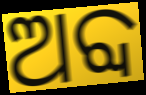
ଅବ୍ଦ